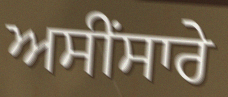
ਅਸੀਂਸਾਰੇ